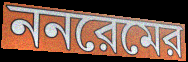
ননরেমের